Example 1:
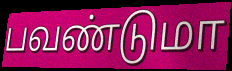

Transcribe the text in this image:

பவண்டுமா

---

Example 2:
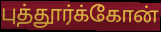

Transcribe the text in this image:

புத்தூர்க்கோன்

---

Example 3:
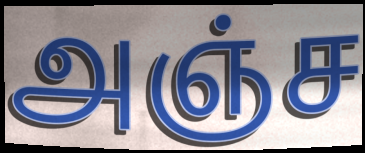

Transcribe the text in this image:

அஞ்ச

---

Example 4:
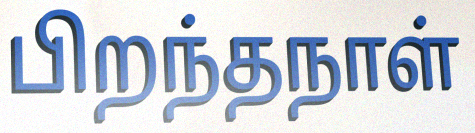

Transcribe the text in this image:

பிறந்தநாள்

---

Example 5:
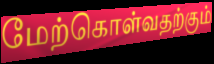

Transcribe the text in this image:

மேற்கொள்வதற்கும்